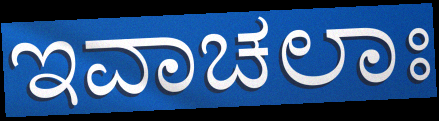
ಇವಾಚಲಾಃ